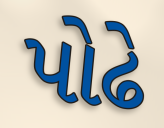
પોઢે